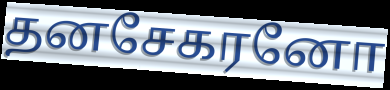
தனசேகரனோ